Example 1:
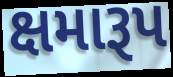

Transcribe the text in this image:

ક્ષમારૂપ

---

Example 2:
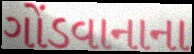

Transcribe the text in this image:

ગોંડવાનાના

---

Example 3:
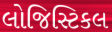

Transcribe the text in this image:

લોજિસ્ટિકલ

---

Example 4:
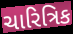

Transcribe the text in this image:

ચારિત્રિક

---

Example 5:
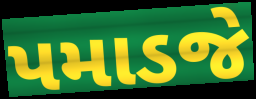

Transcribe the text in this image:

પમાડજે